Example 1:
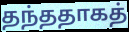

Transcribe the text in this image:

தந்ததாகத்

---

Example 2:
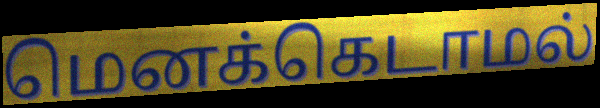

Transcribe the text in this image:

மெனக்கெடாமல்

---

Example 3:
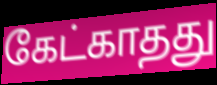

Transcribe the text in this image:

கேட்காதது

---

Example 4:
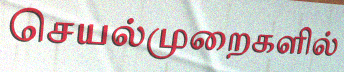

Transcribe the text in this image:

செயல்முறைகளில்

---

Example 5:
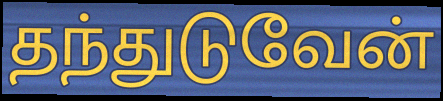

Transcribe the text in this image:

தந்துடுவேன்